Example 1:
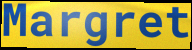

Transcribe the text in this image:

Margret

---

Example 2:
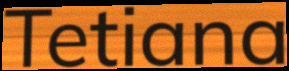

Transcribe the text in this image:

Tetiana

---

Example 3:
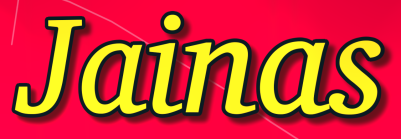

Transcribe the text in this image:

Jainas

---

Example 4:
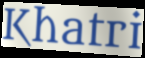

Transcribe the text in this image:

Khatri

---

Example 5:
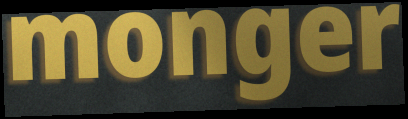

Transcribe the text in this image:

monger